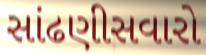
સાંઢણીસવારો